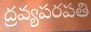
ద్రవ్యపరపతి